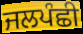
ਜਲਪੰਛੀ